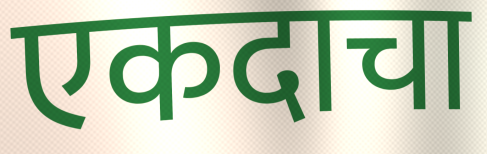
एकदाचा